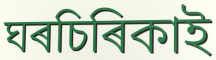
ঘৰচিৰিকাই